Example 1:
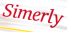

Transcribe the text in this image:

Simerly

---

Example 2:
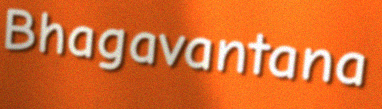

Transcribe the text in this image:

Bhagavantana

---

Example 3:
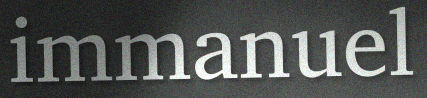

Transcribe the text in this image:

immanuel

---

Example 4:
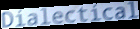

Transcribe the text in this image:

Dialectical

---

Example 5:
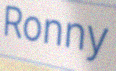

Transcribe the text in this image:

Ronny